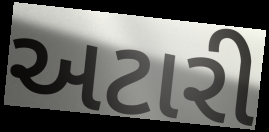
અટારી